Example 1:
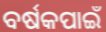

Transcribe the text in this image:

ବର୍ଷକପାଇଁ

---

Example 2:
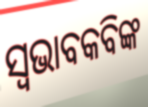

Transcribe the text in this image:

ସ୍ଵଭାବକବିଙ୍କ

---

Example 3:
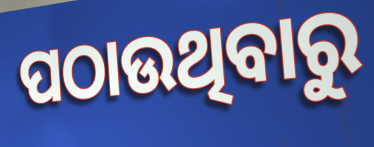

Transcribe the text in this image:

ପଠାଉଥିବାରୁ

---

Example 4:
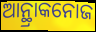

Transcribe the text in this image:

ଆନ୍ଥ୍ରାକନୋଜ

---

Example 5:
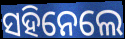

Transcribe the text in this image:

ସହିନେଲେ